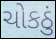
ચોકઠું